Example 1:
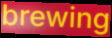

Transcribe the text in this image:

brewing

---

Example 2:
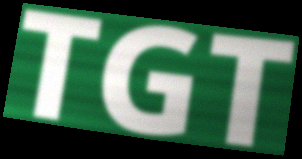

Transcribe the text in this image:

TGT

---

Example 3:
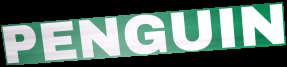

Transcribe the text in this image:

PENGUIN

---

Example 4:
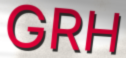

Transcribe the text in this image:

GRH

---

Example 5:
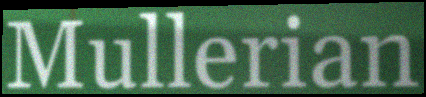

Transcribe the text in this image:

Mullerian